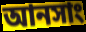
আনসাং